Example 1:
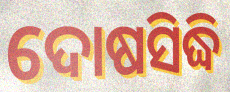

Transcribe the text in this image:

ଦୋଷସିଦ୍ଧି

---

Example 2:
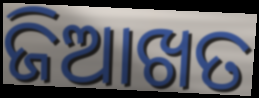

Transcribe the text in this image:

ଜିଆଖତ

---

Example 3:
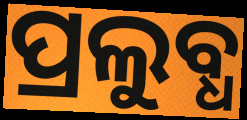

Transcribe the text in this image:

ପ୍ରଲୁବ୍ଧ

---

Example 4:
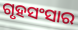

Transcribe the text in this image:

ଗୃହସଂସାର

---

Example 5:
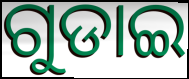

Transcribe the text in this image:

ଗୁଡାଇ